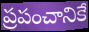
ప్రపంచానికే